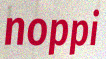
noppi